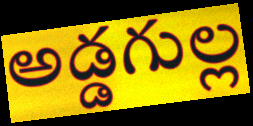
అడ్డగుల్ల